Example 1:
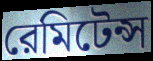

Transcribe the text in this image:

রেমিটেন্স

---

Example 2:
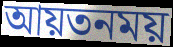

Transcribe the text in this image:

আয়তনময়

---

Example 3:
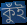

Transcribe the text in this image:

কুঁই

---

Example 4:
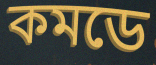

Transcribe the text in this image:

কমডে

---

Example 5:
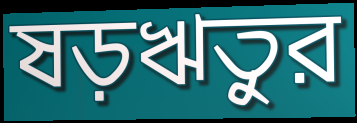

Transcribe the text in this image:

ষড়ঋতুর